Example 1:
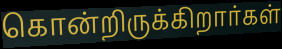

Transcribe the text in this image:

கொன்றிருக்கிறார்கள்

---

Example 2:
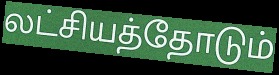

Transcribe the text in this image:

லட்சியத்தோடும்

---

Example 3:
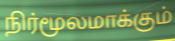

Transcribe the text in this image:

நிர்மூலமாக்கும்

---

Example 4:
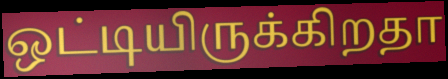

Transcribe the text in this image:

ஒட்டியிருக்கிறதா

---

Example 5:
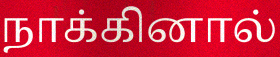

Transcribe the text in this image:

நாக்கினால்